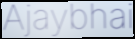
Ajaybhai